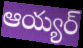
ఆయ్యర్